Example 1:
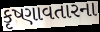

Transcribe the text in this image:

કૃષ્ણાવતારના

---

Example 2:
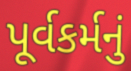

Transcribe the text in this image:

પૂર્વકર્મનું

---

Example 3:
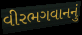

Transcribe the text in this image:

વીરભગવાનનું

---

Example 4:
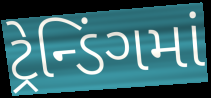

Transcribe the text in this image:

ટ્રેન્ડિંગમાં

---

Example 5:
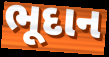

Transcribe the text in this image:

ભૂદાન